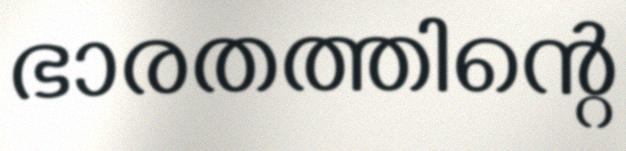
ഭാരതത്തിന്റെ